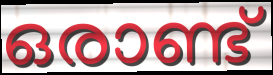
ഒരാണ്ട്